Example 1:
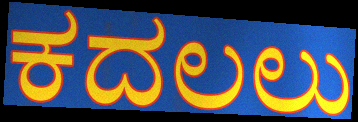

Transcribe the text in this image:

ಕದಲಲು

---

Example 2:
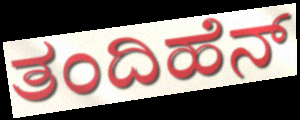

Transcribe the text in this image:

ತಂದಿಹೆನ್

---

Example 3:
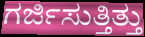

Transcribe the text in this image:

ಗರ್ಜಿಸುತ್ತಿತ್ತು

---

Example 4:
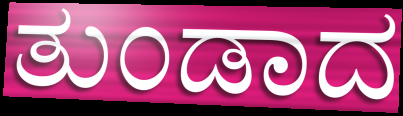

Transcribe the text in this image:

ತುಂಡಾದ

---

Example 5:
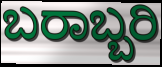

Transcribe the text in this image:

ಬರಾಬ್ಬರಿ